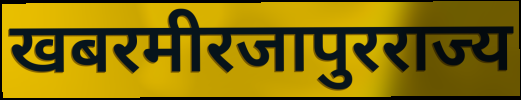
खबरमीरजापुरराज्य